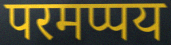
परमप्पय